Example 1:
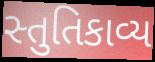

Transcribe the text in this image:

સ્તુતિકાવ્ય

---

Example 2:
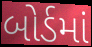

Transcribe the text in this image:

બોર્ડમાં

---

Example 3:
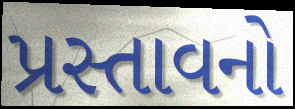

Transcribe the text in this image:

પ્રસ્તાવનો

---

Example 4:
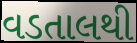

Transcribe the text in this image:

વડતાલથી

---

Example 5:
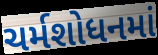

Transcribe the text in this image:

ચર્મશોધનમાં